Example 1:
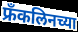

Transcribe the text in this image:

फ्रँकलिनच्या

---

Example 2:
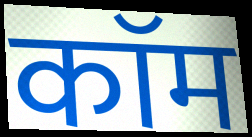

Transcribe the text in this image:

कॉम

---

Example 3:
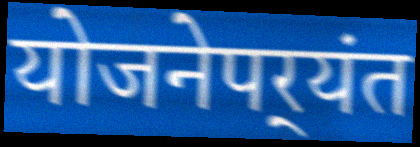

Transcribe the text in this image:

योजनेपर्यंत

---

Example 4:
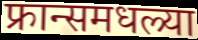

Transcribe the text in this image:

फ्रान्समधल्या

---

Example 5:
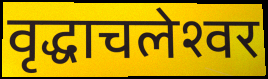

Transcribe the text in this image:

वृद्धाचलेश्वर